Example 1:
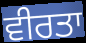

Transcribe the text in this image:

ਵੀਰਤਾ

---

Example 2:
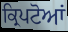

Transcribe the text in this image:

ਕ੍ਰਿਪਟੋਆਂ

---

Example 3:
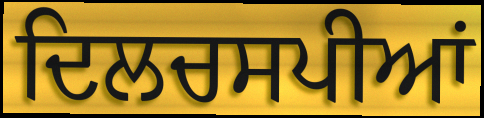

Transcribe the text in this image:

ਦਿਲਚਸਪੀਆਂ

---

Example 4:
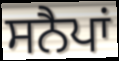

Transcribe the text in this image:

ਸਨੈਪਾਂ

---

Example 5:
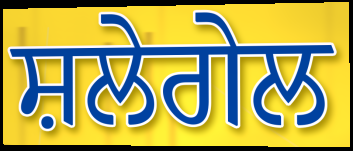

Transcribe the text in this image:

ਸ਼ਲੇਗੇਲ